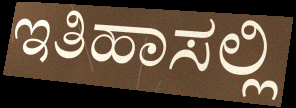
ಇತಿಹಾಸಲ್ಲಿ